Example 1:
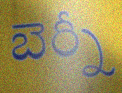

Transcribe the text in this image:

బెర్నీ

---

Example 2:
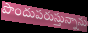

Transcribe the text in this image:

పొందుపరుస్తున్నాను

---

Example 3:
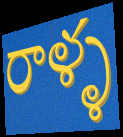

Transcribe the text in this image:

రాళ్ళ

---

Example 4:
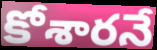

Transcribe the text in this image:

కోశారనే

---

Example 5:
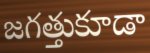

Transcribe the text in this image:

జగత్తుకూడా